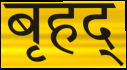
बृहद्